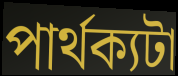
পার্থক্যটা